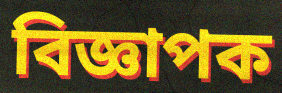
বিজ্ঞাপক